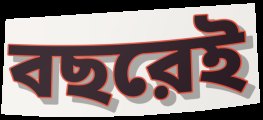
বছরেই